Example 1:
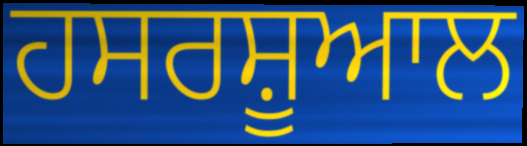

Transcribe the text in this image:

ਹਸਰਸ਼ੂਆਲ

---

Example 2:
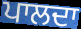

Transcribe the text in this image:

ਪਾਲਦਾ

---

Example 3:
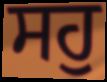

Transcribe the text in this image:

ਸਹੁ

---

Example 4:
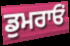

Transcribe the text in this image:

ਡੁਮਰਾਓਂ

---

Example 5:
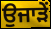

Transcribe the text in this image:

ਉਜਾੜੇਂ